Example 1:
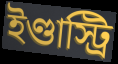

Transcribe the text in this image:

ইণ্ডাস্ট্রি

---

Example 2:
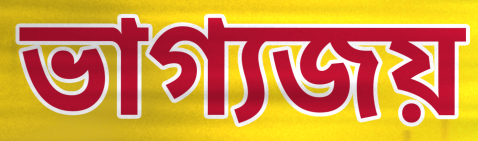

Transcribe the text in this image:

ভাগ্যজয়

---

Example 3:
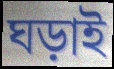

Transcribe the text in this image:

ঘড়াই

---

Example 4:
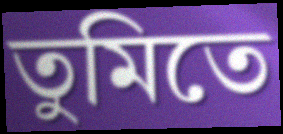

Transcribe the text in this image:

তুমিতে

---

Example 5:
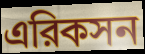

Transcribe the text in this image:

এরিকসন